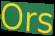
Ors